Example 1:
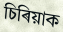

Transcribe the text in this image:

চিৰিয়াক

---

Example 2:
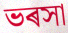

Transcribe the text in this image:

ভৰসা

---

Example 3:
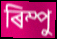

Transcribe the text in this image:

ৰিম্পু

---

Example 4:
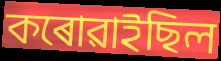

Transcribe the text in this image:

কৰোৱাইছিল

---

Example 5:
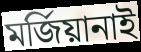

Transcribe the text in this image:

মৰ্জিয়ানাই